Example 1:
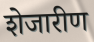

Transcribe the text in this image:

शेजारीण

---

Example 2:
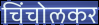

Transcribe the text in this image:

चिंचोलकर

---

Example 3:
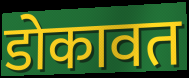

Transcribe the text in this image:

डोकावत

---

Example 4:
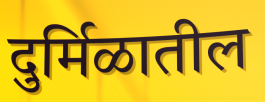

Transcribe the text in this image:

दुर्मिळातील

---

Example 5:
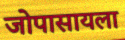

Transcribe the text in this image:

जोपासायला